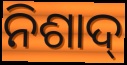
ନିଶାଦ୍